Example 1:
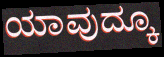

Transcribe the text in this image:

ಯಾವುದ್ಕೂ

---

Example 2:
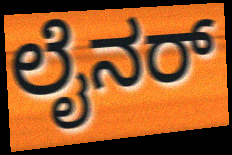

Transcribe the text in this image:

ಲೈನರ್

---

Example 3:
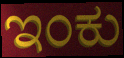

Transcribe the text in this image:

ಇಂಕು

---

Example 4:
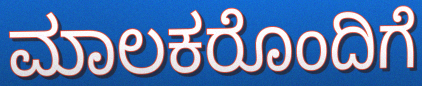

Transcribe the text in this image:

ಮಾಲಕರೊಂದಿಗೆ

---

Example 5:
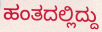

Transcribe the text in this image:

ಹಂತದಲ್ಲಿದ್ದು